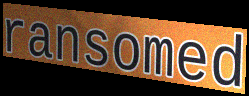
ransomed